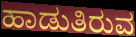
ಹಾಡುತಿರುವ